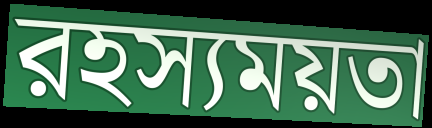
রহস্যময়তা